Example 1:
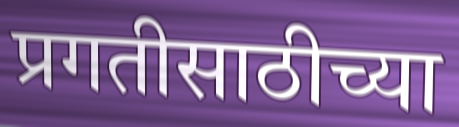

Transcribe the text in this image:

प्रगतीसाठीच्या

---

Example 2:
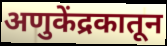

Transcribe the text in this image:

अणुकेंद्रकातून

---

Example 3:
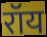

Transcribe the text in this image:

रॉय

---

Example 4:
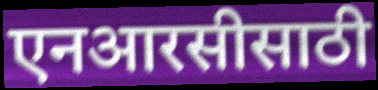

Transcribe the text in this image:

एनआरसीसाठी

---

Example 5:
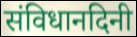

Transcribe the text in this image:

संविधानदिनी